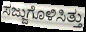
ಸಜ್ಜುಗೊಳಿಸಿತ್ತು